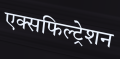
एक्सफिल्ट्रेशन